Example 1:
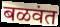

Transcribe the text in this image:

बळवंत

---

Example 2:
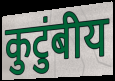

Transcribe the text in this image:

कुटुंबीय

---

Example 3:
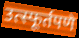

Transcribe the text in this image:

उत्स्फूर्तपणे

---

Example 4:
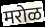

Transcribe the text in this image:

मरोळ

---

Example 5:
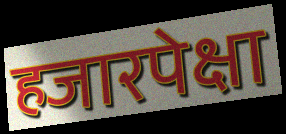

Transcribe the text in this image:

हजारपेक्षा